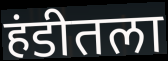
हंडीतला